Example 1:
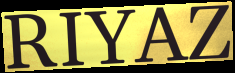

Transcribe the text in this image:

RIYAZ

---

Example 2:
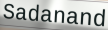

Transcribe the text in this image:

Sadanand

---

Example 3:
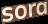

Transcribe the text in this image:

sora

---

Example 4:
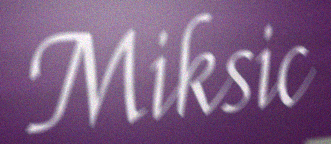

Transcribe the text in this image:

Miksic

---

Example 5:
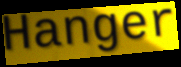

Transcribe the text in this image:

Hanger